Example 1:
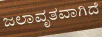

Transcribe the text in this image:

ಜಲಾವೃತವಾಗಿದೆ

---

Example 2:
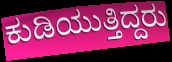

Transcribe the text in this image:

ಕುಡಿಯುತ್ತಿದ್ದರು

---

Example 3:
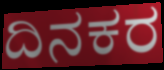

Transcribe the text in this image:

ದಿನಕರ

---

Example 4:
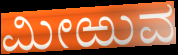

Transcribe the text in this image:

ಮೀಱುವ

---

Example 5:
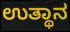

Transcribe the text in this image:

ಉತ್ಥಾನ